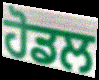
ਹੋਡਲ